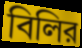
বিলির